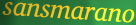
sansmarano